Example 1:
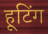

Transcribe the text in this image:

हूटिंग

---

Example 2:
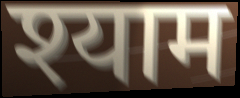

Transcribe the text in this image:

श्याम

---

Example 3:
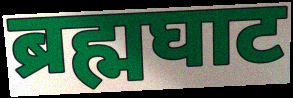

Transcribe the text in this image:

ब्रह्मघाट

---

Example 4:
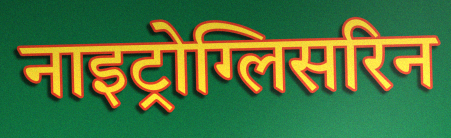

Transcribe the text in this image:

नाइट्रोग्लिसरिन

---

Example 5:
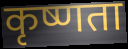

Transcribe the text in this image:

कृष्णता